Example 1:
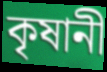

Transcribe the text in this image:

কৃষানী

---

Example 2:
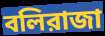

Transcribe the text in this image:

বলিরাজা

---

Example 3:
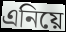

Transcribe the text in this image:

এনিয়ে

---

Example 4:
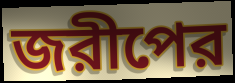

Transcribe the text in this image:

জরীপের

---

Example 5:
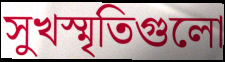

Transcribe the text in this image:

সুখস্মৃতিগুলো